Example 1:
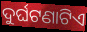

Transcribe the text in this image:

ଦୁର୍ଘଟଣାଟିଏ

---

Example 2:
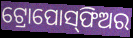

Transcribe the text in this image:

ଟ୍ରୋପୋସ୍‌ଫିଅର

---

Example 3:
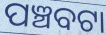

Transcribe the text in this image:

ପଞ୍ଚବଟା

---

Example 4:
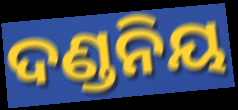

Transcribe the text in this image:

ଦଣ୍ଡନିୟ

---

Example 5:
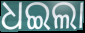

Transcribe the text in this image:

ଧଇଲା